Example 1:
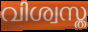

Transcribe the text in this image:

വിശ്വസ്ത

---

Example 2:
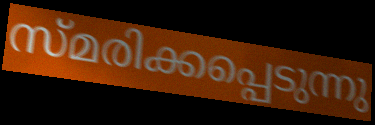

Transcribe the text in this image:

സ്മരിക്കപ്പെടുന്നു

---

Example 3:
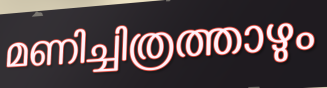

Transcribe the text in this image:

മണിച്ചിത്രത്താഴും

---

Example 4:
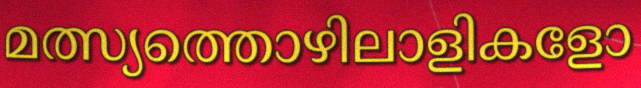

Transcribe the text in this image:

മത്സ്യത്തൊഴിലാളികളോ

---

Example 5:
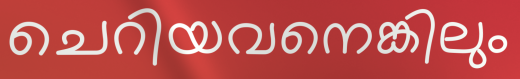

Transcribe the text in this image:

ചെറിയവനെങ്കിലും